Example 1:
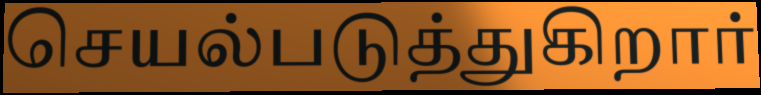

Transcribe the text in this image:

செயல்படுத்துகிறார்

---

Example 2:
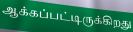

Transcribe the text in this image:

ஆக்கப்பட்டிருக்கிறது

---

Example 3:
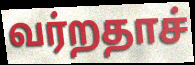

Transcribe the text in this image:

வர்றதாச்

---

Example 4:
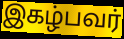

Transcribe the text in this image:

இகழ்பவர்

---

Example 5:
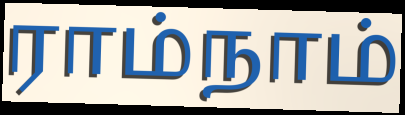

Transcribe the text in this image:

ராம்நாம்